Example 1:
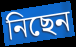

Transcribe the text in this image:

নিছেন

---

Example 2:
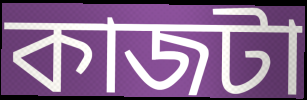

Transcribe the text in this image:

কাজটা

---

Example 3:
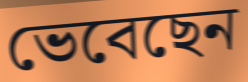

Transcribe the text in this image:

ভেবেছেন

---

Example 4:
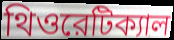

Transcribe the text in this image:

থিওরেটিক্যাল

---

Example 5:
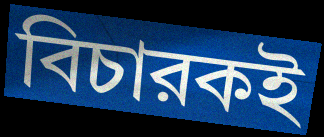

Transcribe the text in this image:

বিচারকই